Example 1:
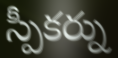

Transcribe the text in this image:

స్పీకర్ను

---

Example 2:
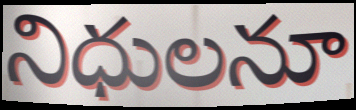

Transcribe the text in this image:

నిధులనూ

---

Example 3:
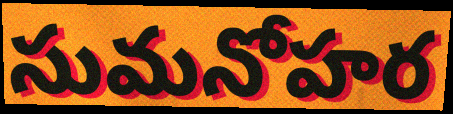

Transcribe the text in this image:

సుమనోహర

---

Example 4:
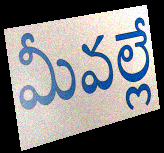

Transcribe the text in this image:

మీవల్లే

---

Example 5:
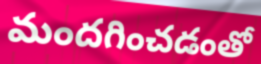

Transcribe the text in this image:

మందగించడంతో